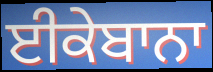
ਈਕੇਬਾਨਾ